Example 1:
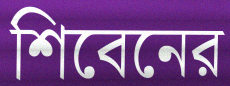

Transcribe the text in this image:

শিবেনের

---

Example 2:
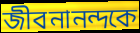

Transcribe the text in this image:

জীবনানন্দকে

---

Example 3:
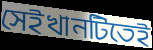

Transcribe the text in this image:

সেইখানটিতেই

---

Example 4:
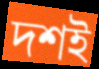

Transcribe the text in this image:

দশই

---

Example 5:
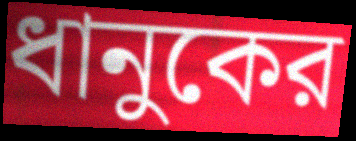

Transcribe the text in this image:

ধানুকের